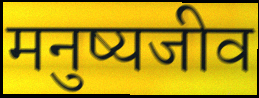
मनुष्यजीव